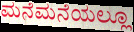
ಮನೆಮನೆಯಲ್ಲೂ